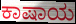
ಕಾಷಾಯ